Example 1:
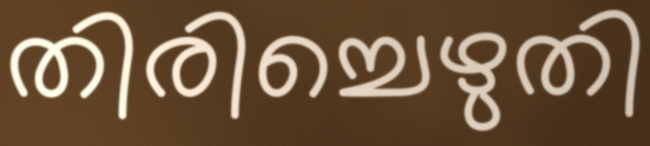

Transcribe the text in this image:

തിരിച്ചെഴുതി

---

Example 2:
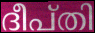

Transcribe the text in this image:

ദീപ്തി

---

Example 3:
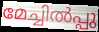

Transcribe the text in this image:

മേച്ചിൽപ്പു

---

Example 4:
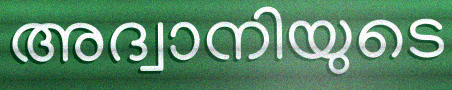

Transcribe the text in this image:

അദ്വാനിയുടെ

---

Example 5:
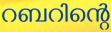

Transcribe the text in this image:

റബറിന്റെ